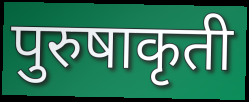
पुरुषाकृती